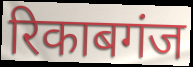
रिकाबगंज